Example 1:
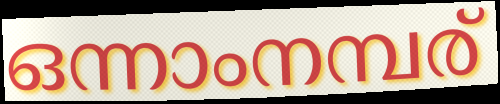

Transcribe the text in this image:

ഒന്നാംനമ്പര്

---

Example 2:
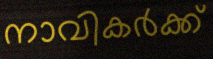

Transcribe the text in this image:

നാവികർക്ക്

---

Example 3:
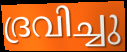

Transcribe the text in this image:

ദ്രവിച്ചു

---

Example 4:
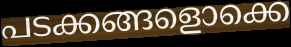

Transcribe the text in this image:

പടക്കങ്ങളൊക്കെ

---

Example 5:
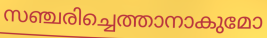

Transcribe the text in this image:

സഞ്ചരിച്ചെത്താനാകുമോ